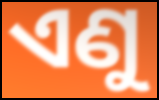
ଏଣୁ